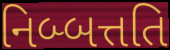
નિબ્બત્તતિ